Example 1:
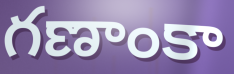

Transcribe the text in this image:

గణాంకా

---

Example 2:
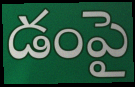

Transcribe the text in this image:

డంపై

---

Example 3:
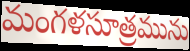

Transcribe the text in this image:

మంగళసూత్రమును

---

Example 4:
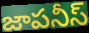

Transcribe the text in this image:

జాపనీస్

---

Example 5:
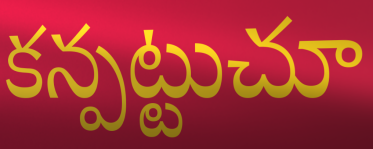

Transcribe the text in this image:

కన్పట్టుచూ